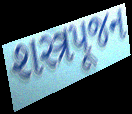
શસ્ત્રપૂજન